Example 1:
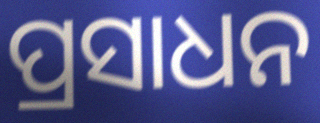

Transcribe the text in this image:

ପ୍ରସାଧନ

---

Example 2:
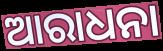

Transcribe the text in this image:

ଆରାଧନା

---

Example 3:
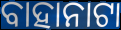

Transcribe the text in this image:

ବାହାନାଟା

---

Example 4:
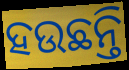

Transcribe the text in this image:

ହଉଛନ୍ତି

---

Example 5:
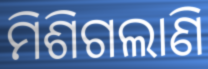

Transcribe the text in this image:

ମିଶିଗଲାଣି